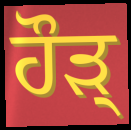
ਹੌੜ੍